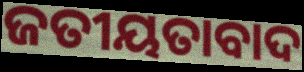
ଜତୀୟତାବାଦ